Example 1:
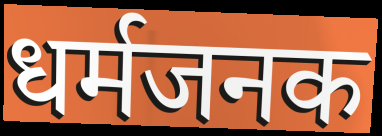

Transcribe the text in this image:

धर्मजनक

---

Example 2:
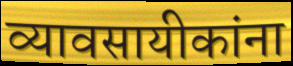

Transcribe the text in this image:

व्यावसायीकांना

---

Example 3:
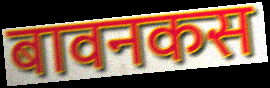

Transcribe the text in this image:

बावनकस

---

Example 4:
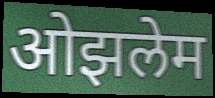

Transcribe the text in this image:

ओझलेम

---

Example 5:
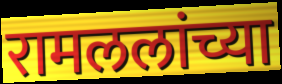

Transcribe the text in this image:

रामललांच्या